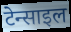
टेन्साइल